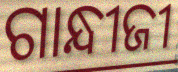
ଗାନ୍ଧୀଜୀ